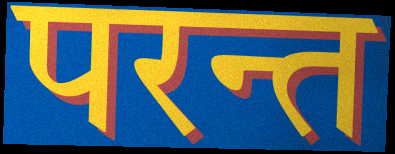
परन्त